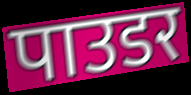
पाउडर